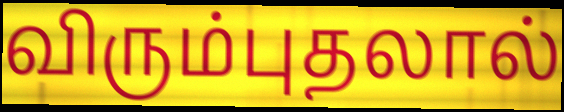
விரும்புதலால்